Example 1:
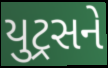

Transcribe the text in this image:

યુટ્રસને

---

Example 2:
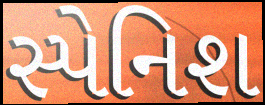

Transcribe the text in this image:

સ્પેનિશ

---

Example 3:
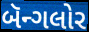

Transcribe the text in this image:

બૅન્ગલોર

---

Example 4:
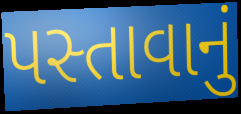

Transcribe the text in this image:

પસ્તાવાનું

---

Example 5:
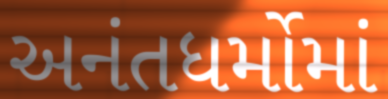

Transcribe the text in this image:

અનંતધર્મોમાં